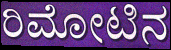
ರಿಮೋಟಿನ